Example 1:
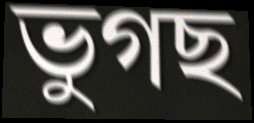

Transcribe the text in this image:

ভুগছ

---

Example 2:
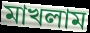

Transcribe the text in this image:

মাখলাম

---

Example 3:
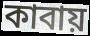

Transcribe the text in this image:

কাবায়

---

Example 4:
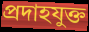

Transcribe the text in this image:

প্রদাহযুক্ত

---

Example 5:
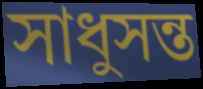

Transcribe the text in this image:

সাধুসন্ত